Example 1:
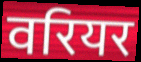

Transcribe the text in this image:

वरियर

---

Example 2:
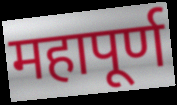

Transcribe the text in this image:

महापूर्ण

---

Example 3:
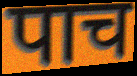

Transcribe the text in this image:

पाच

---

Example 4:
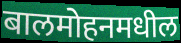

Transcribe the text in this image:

बालमोहनमधील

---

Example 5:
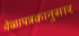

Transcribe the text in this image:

वेळापत्रकानुसार